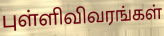
புள்ளிவிவரங்கள்